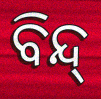
ବିନ୍ଦ୍